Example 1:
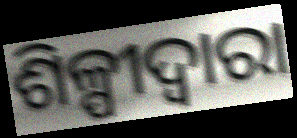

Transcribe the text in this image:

ଶିଳ୍ପୀଦ୍ୱାରା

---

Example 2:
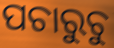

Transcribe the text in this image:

ପଚାରୁଚୁ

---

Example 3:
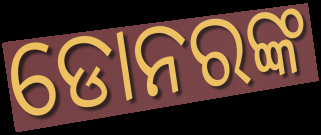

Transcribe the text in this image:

ଡୋନରଙ୍କ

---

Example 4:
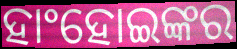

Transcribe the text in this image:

ହାଂହୋଇଙ୍କର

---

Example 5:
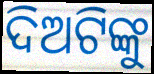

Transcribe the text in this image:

ଦିଅଟିଙ୍କୁ